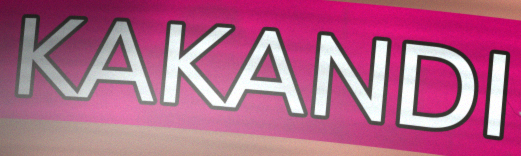
KAKANDI